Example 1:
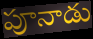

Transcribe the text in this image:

పూనాడు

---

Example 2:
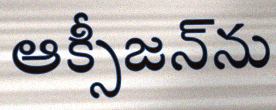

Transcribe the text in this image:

ఆక్సీజన్‌ను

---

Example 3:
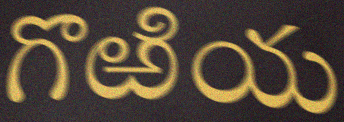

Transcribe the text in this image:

గొఱియ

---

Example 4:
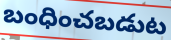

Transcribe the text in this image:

బంధించబడుట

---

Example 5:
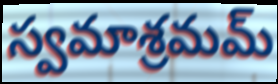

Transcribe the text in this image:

స్వమాశ్రమమ్